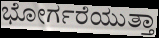
ಭೋರ್ಗರೆಯುತ್ತಾ